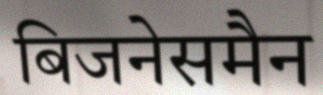
बिजनेसमैन